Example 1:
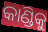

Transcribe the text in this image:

କାଣ୍ଡିକୁ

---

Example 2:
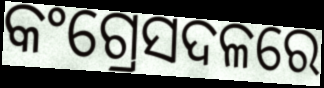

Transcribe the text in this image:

କଂଗ୍ରେସଦଳରେ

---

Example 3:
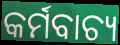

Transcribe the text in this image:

କର୍ମବାଚ୍ୟ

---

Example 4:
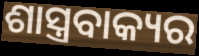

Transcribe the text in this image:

ଶାସ୍ତ୍ରବାକ୍ୟର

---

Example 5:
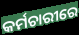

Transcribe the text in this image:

କର୍ମଚାରୀରେ